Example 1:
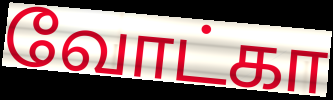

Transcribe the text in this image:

வோட்கா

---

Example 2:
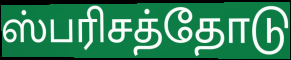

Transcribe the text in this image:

ஸ்பரிசத்தோடு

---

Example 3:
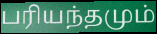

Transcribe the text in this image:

பரியந்தமும்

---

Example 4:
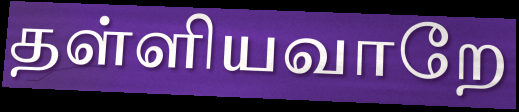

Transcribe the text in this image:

தள்ளியவாறே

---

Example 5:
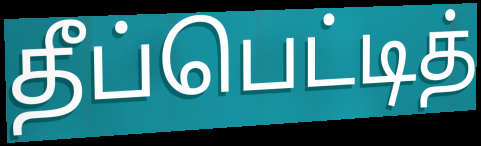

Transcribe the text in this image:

தீப்பெட்டித்